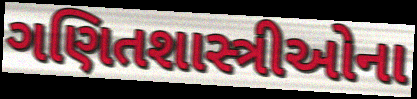
ગણિતશાસ્ત્રીઓના